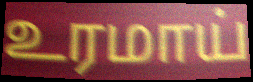
உரமாய்